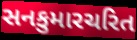
સનકુમારચરિત